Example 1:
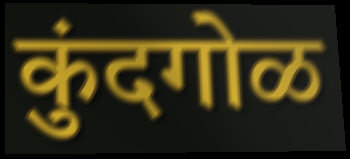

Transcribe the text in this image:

कुंदगोळ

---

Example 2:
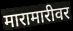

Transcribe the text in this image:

मारामारीवर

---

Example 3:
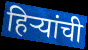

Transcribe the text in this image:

हिऱ्यांची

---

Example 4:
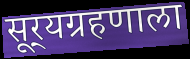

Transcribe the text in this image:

सूर्यग्रहणाला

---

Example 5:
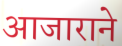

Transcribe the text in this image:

आजाराने